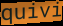
quivi